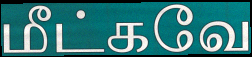
மீட்கவே